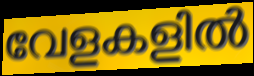
വേളകളിൽ